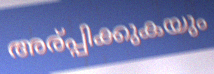
അര്പ്പിക്കുകയും